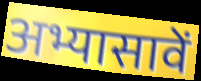
अभ्यासावें